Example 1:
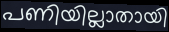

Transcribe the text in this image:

പണിയില്ലാതായി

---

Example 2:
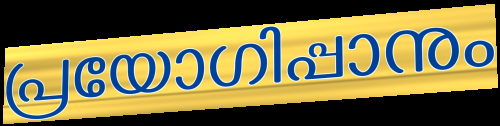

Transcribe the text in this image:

പ്രയോഗിപ്പാനും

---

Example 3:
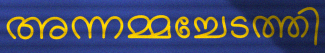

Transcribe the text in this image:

അന്നമ്മച്ചേടത്തി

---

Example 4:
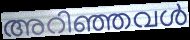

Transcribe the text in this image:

അറിഞ്ഞവൾ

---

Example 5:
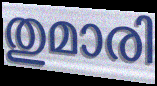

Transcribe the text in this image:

തുമാരി